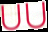
UU